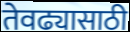
तेवढ्यासाठी